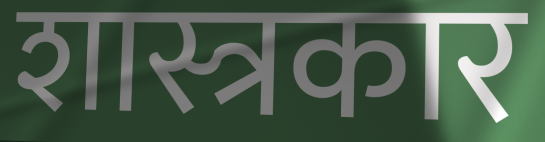
शास्त्रकार